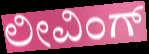
ಲೀವಿಂಗ್